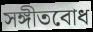
সঙ্গীতবোধ